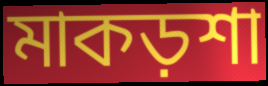
মাকড়শা